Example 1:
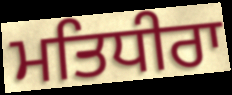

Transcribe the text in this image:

ਮਤਿਧੀਰਾ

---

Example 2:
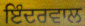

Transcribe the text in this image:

ਇੰਦਰਵਾਲ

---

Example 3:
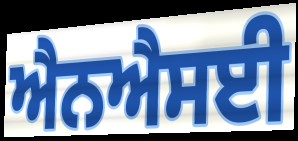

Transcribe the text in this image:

ਐਨਐਸਈ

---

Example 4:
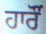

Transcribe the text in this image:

ਹਾਰੌਂ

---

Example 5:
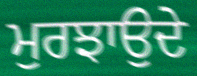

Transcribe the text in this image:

ਮੁਰਝਾਉਦੇ